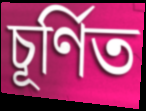
চূর্ণিত